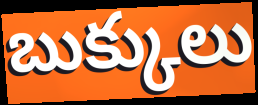
బుక్కులు